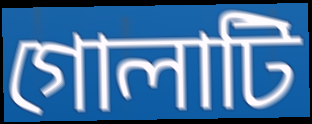
গোলাটি